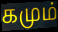
கமும்